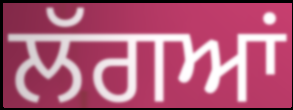
ਲੱਗਆਂ